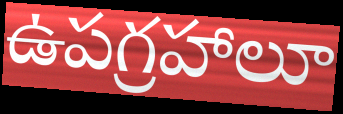
ఉపగ్రహాలూ